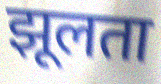
झूलता